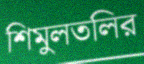
শিমুলতলির